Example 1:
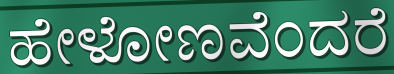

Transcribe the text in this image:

ಹೇಳೋಣವೆಂದರೆ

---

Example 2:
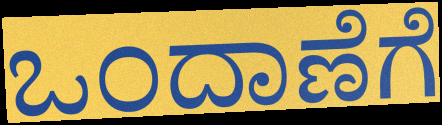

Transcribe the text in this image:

ಒಂದಾಣೆಗೆ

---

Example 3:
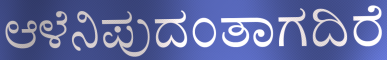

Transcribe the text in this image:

ಆಳೆನಿಪುದಂತಾಗದಿರೆ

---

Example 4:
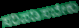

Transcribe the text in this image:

ಸರಿಪಡಿಸಬೇಕು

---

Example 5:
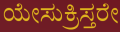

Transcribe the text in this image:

ಯೇಸುಕ್ರಿಸ್ತರೇ